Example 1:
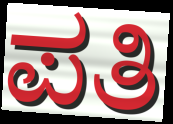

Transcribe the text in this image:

ಪತಿ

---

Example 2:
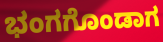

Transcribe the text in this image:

ಭಂಗಗೊಂಡಾಗ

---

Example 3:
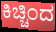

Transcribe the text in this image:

ಕಿಚ್ಚಿಂದ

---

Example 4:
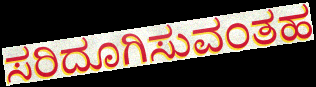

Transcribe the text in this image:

ಸರಿದೂಗಿಸುವಂತಹ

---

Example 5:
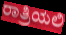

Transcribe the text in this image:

ರಾತ್ರಿಯಲಿ